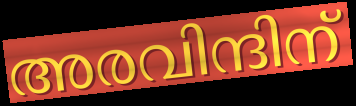
അരവിന്ദിന്